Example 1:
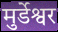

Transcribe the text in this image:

मुर्डेश्वर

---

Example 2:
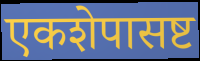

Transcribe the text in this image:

एकशेपासष्ट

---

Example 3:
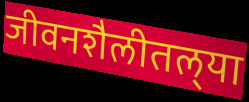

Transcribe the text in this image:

जीवनशैलीतल्या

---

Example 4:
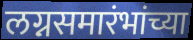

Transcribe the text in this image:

लग्नसमारंभांच्या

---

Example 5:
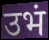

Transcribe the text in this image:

उभं